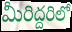
మీరిద్దరిలో